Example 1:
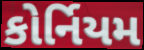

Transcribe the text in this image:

કોર્નિયમ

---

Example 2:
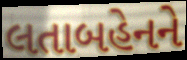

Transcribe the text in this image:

લતાબહેનને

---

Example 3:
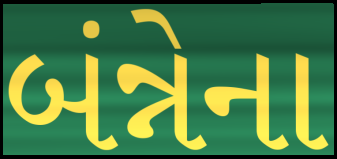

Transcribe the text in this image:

બંન્નેના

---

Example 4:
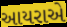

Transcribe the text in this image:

આયરાએ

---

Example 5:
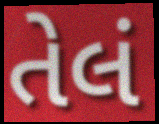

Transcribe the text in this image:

તેલં